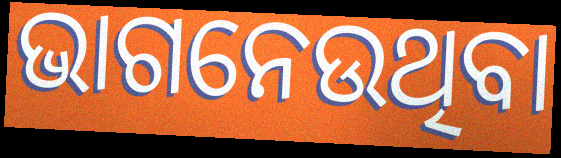
ଭାଗନେଉଥିବା